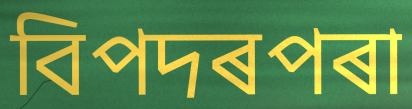
বিপদৰপৰা